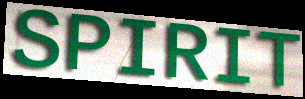
SPIRIT